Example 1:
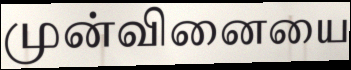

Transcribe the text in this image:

முன்வினையை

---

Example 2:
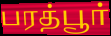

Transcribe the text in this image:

பரத்பூர்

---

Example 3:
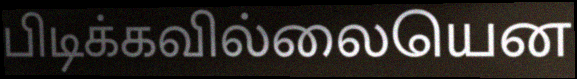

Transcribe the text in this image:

பிடிக்கவில்லையென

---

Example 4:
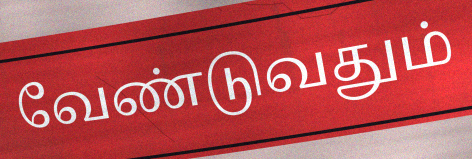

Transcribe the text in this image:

வேண்டுவதும்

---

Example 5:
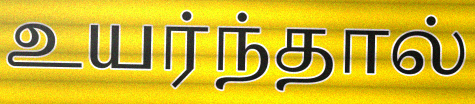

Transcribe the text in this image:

உயர்ந்தால்